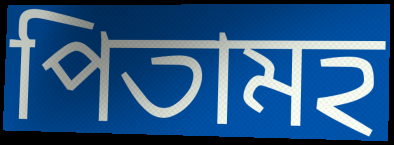
পিতামহ